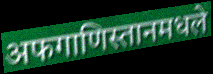
अफगाणिस्तानमधले